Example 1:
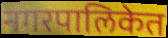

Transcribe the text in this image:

नगरपालिकेत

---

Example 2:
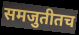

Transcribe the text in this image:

समजुतीतच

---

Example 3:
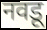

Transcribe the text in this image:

नवडू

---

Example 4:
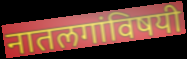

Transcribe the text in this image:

नातलगांविषयी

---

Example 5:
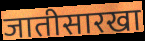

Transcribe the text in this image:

जातीसारखा